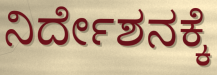
ನಿರ್ದೇಶನಕ್ಕೆ